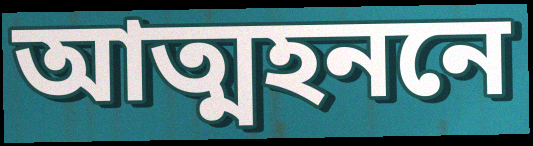
আত্মহননে